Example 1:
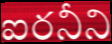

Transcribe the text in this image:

ఐరనీని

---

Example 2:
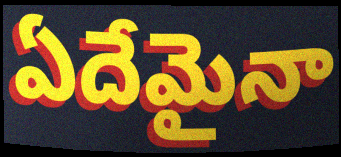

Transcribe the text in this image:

ఏదేమైనా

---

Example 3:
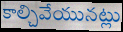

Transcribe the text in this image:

కాల్చివేయునట్లు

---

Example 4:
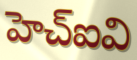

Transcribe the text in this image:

హెచ్ఐవి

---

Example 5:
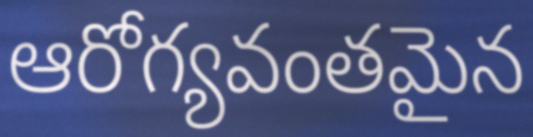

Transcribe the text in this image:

ఆరోగ్యవంతమైన